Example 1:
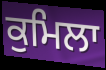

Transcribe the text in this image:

ਕੁਮਿਲਾ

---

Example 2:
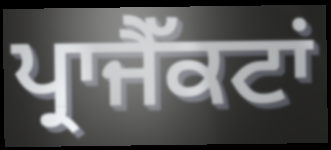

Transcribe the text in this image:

ਪ੍ਰਾਜੈੱਕਟਾਂ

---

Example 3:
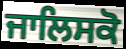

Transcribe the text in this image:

ਜਾਲਿਸਕੋ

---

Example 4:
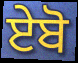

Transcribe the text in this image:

ਏਬੋ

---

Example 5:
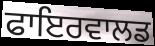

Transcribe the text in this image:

ਫਾਇਰਵਾਲਡ